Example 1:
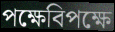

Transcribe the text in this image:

পক্ষেবিপক্ষে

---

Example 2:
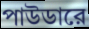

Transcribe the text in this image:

পাউডারে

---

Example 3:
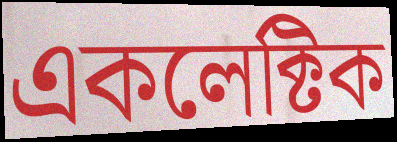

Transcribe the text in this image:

একলেক্টিক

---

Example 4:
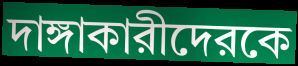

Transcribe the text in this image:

দাঙ্গাকারীদেরকে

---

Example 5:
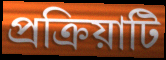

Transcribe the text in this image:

প্রক্রিয়াটি